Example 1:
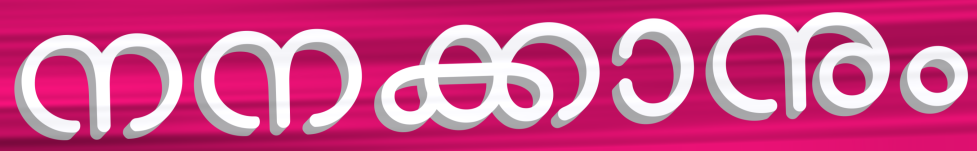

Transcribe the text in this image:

നനക്കാനും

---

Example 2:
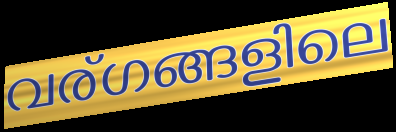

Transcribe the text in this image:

വര്ഗങ്ങളിലെ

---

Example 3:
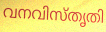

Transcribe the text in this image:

വനവിസ്തൃതി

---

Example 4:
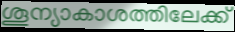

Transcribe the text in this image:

ശൂന്യാകാശത്തിലേക്ക്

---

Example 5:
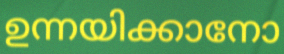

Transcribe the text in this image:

ഉന്നയിക്കാനോ